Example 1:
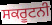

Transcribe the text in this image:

ਸਕਰੂਟਨੀ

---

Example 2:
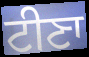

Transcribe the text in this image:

ਟੀਣਾ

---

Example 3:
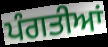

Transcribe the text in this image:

ਪੰਗਤੀਆਂ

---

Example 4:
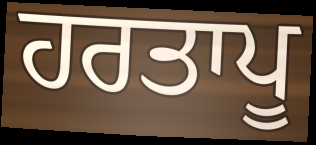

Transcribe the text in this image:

ਹਰਤਾਪੂ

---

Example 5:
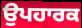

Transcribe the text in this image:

ਉਪਹਾਰਕ